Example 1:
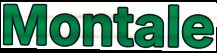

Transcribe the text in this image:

Montale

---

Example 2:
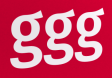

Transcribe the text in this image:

ggg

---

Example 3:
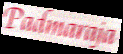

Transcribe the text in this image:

Padmaraja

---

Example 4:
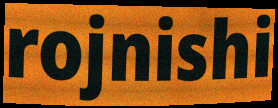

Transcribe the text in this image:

rojnishi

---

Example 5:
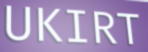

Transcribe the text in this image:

UKIRT